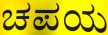
ಚಪಯ